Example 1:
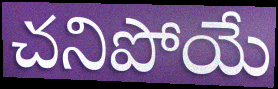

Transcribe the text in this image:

చనిపోయే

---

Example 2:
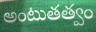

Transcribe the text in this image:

అంటుతత్వం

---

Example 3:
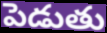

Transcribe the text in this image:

పెడుతు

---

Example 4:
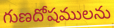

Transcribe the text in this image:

గుణదోషములను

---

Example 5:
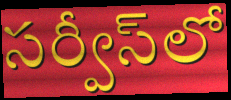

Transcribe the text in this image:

సర్వీస్‌లో